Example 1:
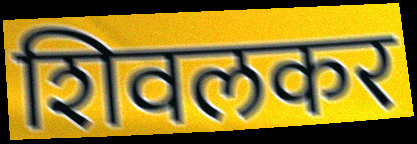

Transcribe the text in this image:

शिवलकर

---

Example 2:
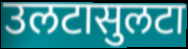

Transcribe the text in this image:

उलटासुलटा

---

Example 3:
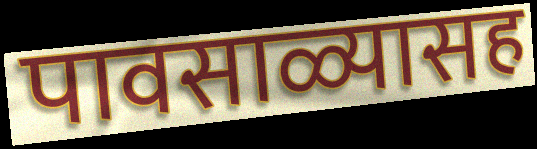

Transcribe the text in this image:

पावसाळ्यासह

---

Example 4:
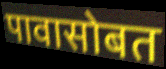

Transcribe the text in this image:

पावासोबत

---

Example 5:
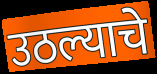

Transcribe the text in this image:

उठल्याचे